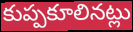
కుప్పకూలినట్లు